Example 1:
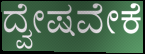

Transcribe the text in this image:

ದ್ವೇಷವೇಕೆ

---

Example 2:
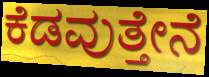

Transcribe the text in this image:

ಕೆಡವುತ್ತೇನೆ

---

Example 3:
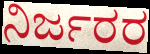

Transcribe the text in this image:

ನಿರ್ಜರರ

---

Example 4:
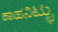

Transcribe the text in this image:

ಕಾಹನಿಟ್ಟು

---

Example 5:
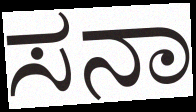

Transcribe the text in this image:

ಸನಾ